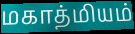
மகாத்மியம்